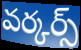
వర్కర్స్